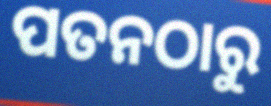
ପତନଠାରୁ